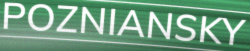
POZNIANSKY